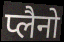
प्लैनो